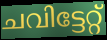
ചവിട്ടേറ്റ്